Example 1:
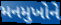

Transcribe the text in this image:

મનમુખોને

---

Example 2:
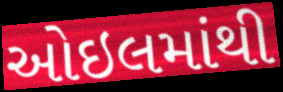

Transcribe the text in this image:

ઓઇલમાંથી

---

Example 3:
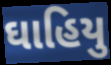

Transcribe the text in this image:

ઘાહિયુ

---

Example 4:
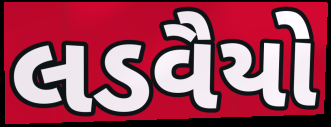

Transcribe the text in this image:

લડવૈયો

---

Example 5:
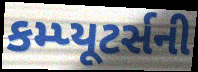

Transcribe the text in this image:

કમ્પ્યૂટર્સની